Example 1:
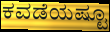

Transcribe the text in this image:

ಕವಡೆಯಷ್ಟೂ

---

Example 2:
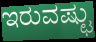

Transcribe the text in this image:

ಇರುವಷ್ಟು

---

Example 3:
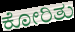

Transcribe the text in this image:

ಕೋರಿತು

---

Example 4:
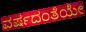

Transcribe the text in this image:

ವರ್ಷದಂತೆಯೇ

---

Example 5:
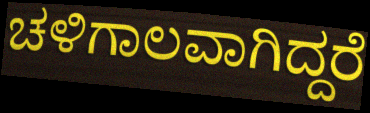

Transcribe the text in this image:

ಚಳಿಗಾಲವಾಗಿದ್ದರೆ